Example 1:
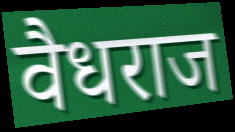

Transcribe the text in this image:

वैधराज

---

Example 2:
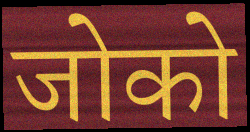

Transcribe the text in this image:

जोको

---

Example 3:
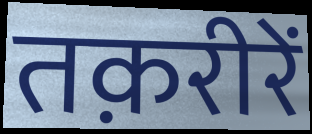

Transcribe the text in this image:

तक़रीरें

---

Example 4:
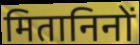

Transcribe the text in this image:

मितानिनों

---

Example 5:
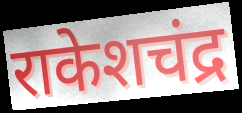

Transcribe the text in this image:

राकेशचंद्र